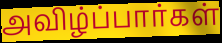
அவிழ்ப்பார்கள்